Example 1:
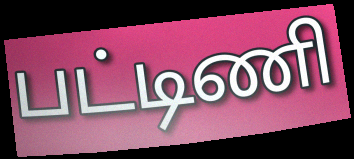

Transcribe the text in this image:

பட்டிணி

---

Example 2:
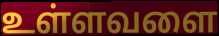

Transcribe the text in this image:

உள்ளவளை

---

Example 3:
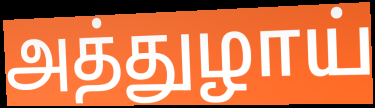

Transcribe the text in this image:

அத்துழாய்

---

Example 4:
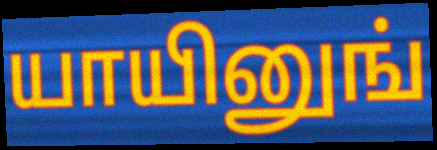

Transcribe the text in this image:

யாயினுங்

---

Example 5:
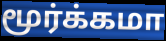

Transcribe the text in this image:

மூர்க்கமா